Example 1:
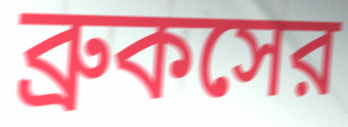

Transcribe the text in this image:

ব্রুকসের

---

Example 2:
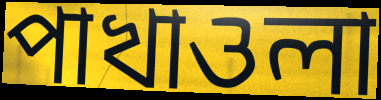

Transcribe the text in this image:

পাখাওলা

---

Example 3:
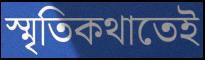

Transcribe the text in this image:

স্মৃতিকথাতেই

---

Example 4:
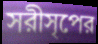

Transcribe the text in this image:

সরীসৃপের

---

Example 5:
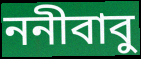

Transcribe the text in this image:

ননীবাবু